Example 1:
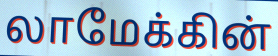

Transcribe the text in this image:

லாமேக்கின்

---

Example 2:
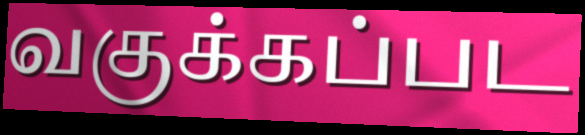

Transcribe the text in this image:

வகுக்கப்பட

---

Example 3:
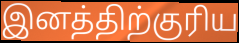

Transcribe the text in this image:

இனத்திற்குரிய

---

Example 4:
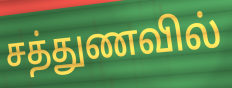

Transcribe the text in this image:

சத்துணவில்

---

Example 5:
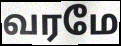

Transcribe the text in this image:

வரமே